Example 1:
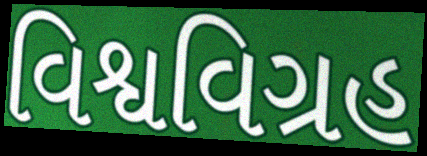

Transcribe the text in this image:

વિશ્વવિગ્રહ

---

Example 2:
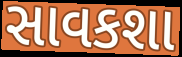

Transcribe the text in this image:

સાવકશા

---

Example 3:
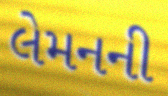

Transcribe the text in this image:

લેમનની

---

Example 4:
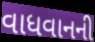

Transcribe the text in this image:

વાધવાનની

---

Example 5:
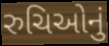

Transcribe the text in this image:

રુચિઓનું